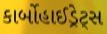
કાર્બોહાઈડ્રેટ્સ